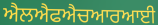
ਐਲਐਫਐਚਆਰਆਈ